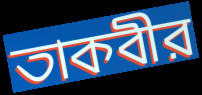
তাকবীর